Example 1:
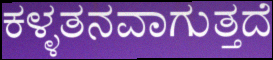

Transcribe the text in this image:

ಕಳ್ಳತನವಾಗುತ್ತದೆ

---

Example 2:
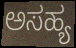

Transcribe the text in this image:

ಅಸಹ್ಯ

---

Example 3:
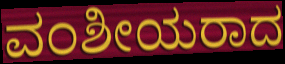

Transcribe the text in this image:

ವಂಶೀಯರಾದ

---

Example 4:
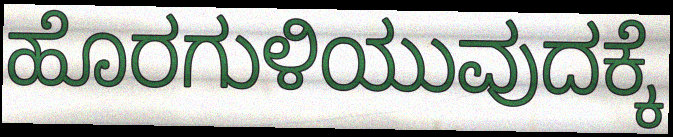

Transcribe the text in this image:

ಹೊರಗುಳಿಯುವುದಕ್ಕೆ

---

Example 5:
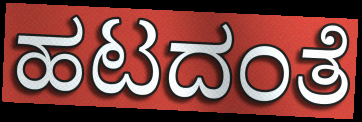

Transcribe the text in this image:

ಹಟದಂತೆ